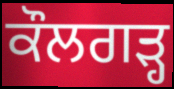
ਕੌਲਗੜ੍ਹ